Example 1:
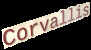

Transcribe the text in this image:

Corvallis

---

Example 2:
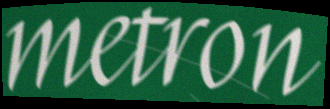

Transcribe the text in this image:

metron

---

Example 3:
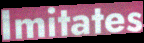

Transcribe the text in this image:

Imitates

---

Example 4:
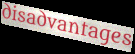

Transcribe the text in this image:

disadvantages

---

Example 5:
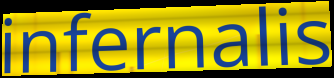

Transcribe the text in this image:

infernalis